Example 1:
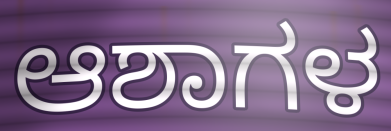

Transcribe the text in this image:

ಆಶಾಗಳ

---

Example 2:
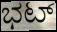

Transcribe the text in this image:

ಭಟ್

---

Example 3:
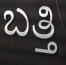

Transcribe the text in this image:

ಬತ್ತಿ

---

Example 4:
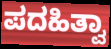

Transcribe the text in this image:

ಪದಹಿತ್ವಾ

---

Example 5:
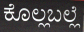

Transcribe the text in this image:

ಕೊಲ್ಲಬಲ್ಲೆ